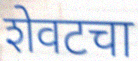
शेवटचा